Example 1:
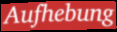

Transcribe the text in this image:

Aufhebung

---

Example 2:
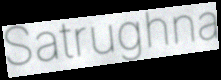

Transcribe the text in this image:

Satrughna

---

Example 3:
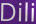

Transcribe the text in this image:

Dili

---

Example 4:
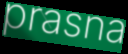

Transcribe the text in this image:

prasna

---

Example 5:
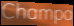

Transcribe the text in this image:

Champa